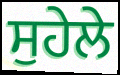
ਸੁਹੇਲੇ